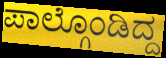
ಪಾಲ್ಗೊಂಡಿದ್ದ